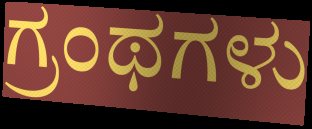
ಗ್ರಂಥಗಳು